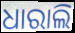
ଧାରାଲି